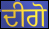
ਦੀਗੋ